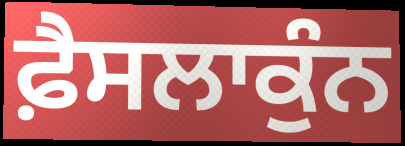
ਫ਼ੈਸਲਾਕੁੰਨ